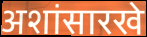
अशांसारखे